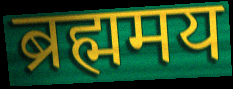
ब्रह्ममय